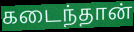
கடைந்தான்